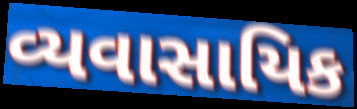
વ્યવાસાયિક